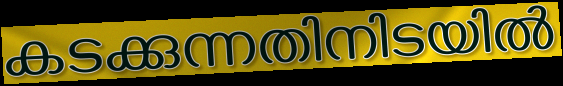
കടക്കുന്നതിനിടയിൽ